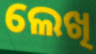
ଲେଖି